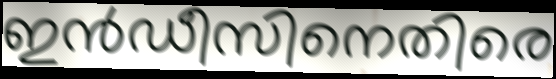
ഇൻഡീസിനെതിരെ